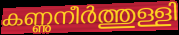
കണ്ണുനീർത്തുള്ളി